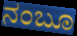
ನಂಬೂ